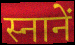
स्नानें